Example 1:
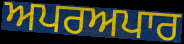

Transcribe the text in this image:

ਅਪਰਅਪਾਰ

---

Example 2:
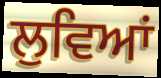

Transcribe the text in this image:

ਲੁਵਿਆਂ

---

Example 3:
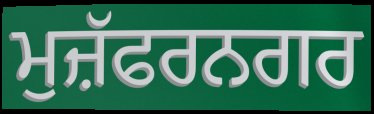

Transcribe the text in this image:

ਮੁਜ਼ੱਫਰਨਗਰ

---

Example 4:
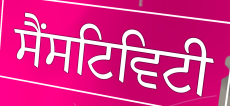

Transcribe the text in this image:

ਸੈਂਸਟਿਵਿਟੀ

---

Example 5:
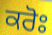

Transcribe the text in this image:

ਕਰੋਃ